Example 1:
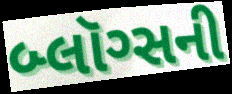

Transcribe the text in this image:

બ્લૉગ્સની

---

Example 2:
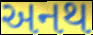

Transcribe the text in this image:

અનથ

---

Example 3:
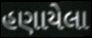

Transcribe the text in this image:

હણાયેલા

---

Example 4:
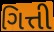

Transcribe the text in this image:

ગિત્તી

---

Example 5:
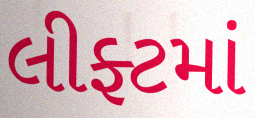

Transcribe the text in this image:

લીફ્ટમાં